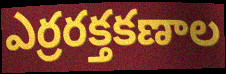
ఎర్రరక్తకణాల